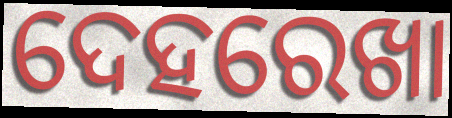
ଦେହରେଖା